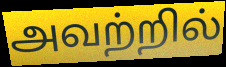
அவற்றில்